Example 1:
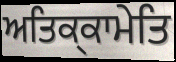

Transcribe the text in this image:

ਅਤਿਕ੍ਕਾਮੇਤਿ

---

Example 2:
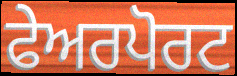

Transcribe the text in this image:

ਫੇਅਰਪੋਰਟ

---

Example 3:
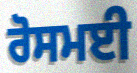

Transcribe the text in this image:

ਰੋਸਮਈ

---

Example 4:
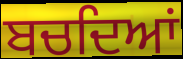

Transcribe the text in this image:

ਬਚਦਿਆਂ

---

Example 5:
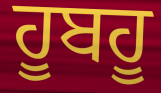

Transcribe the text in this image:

ਹੂਬਹੂ